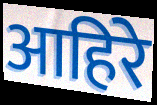
आहिरे